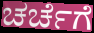
ಚರ್ಚೆಗೆ